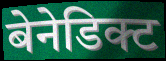
बेनेडिक्ट